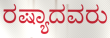
ರಷ್ಯಾದವರು